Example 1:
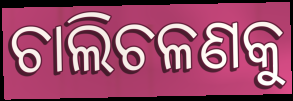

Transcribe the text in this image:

ଚାଲିଚଳଣକୁ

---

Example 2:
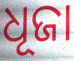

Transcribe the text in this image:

ଧୂଜା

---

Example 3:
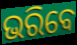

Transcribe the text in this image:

ଭରିବେ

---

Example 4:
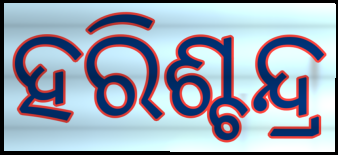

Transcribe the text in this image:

ହରିଶ୍ଚନ୍ଦ୍ର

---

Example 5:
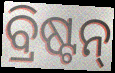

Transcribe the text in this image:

ବ୍ରିଷ୍ଟନ୍